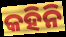
କହିନି